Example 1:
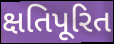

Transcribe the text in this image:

ક્ષતિપૂરિત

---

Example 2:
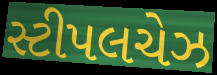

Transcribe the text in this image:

સ્ટીપલચેઝ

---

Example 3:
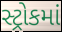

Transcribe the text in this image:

સ્ટ્રોકમાં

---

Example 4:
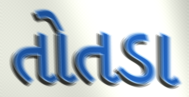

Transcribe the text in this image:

તોતડા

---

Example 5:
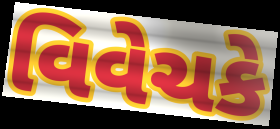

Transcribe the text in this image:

વિવેચકે